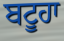
ਬਟੂਹਾ